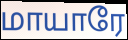
மாயாரே